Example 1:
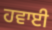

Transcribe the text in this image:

ਹਵਾਈ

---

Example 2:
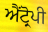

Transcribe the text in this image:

ਐਂਟ੍ਰੋਪੀ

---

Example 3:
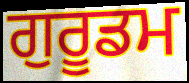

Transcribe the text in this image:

ਗੁਰੂਡਮ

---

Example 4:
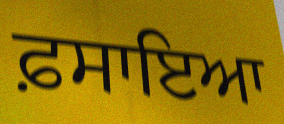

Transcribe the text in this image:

ਫ਼ਸਾਇਆ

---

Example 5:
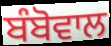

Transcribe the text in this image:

ਬੰਬੋਵਾਲ